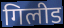
गिलीड